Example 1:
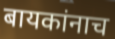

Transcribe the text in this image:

बायकांनाच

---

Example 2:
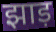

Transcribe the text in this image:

झाड़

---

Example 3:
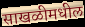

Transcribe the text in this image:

साखळीमधील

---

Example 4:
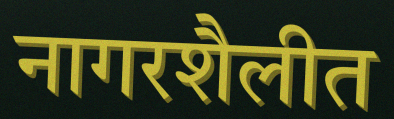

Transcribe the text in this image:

नागरशैलीत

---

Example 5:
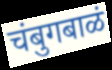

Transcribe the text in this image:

चंबुगबाळं